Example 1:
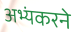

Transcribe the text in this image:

अभ्यंकरने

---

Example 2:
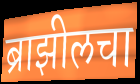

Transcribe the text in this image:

ब्राझीलचा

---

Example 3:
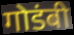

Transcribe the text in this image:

गोडंबी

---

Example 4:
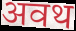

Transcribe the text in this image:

अवथ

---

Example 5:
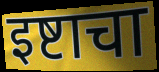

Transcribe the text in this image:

इष्टाचा